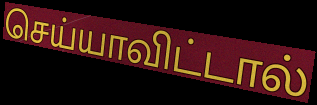
செய்யாவிட்டால்